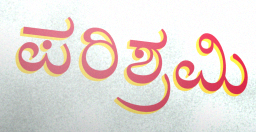
ಪರಿಶ್ರಮಿ